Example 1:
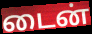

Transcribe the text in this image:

டைன்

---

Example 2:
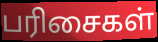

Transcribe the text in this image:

பரிசைகள்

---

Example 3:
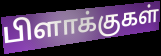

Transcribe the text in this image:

பிளாக்குகள்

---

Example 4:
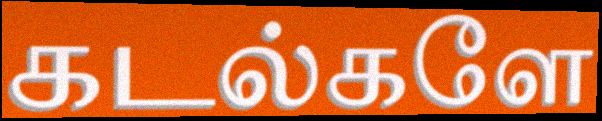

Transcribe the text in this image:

கடல்களே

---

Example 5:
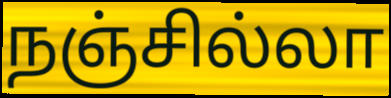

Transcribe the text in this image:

நஞ்சில்லா